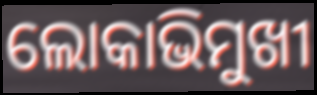
ଲୋକାଭିମୁଖୀ